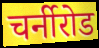
चर्नीरोड